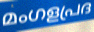
മംഗളപ്രദ